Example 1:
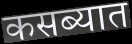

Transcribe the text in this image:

कसब्यात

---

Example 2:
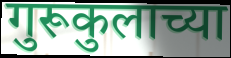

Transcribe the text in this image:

गुरूकुलाच्या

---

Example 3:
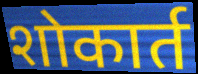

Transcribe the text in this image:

शोकार्त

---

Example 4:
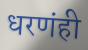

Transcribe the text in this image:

धरणंही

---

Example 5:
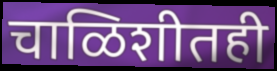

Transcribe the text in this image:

चाळिशीतही